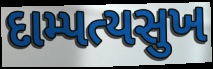
દામ્પત્યસુખ